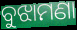
ବୁଝାମଣା